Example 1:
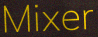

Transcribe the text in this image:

Mixer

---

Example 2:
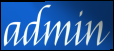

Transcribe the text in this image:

admin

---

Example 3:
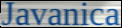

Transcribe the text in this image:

Javanica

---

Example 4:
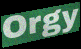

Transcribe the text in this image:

Orgy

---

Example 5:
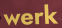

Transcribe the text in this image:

werk